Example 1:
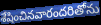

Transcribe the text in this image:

శేషించినవారందరితోను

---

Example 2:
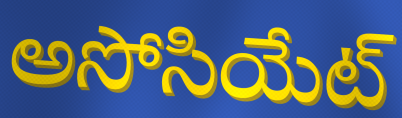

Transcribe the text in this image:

అసోసియేట్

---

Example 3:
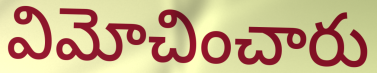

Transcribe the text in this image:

విమోచించారు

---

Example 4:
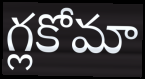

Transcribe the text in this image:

గ్లకోమా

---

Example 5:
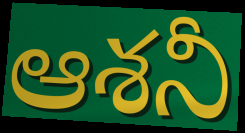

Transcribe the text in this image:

ఆశనీ